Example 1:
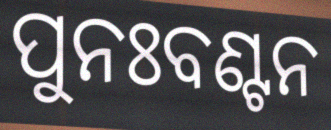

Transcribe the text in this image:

ପୁନଃବଣ୍ଟନ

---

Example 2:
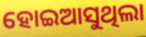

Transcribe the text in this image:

ହୋଇଆସୁଥିଲା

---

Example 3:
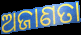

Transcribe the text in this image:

ଅଜାଣତା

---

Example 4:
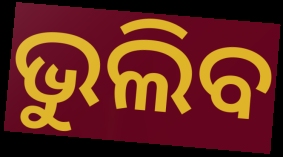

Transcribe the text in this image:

ଭୁଲିବ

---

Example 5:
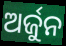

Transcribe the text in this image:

ଅର୍ଜୁନ